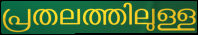
പ്രതലത്തിലുള്ള